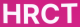
HRCT